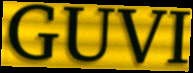
GUVI